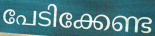
പേടിക്കേണ്ട